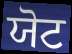
ਯੋਟ